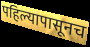
पहिल्यापासूनच